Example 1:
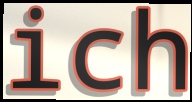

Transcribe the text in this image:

ich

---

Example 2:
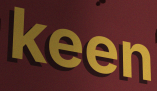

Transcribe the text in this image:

keen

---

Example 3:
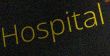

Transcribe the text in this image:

Hospital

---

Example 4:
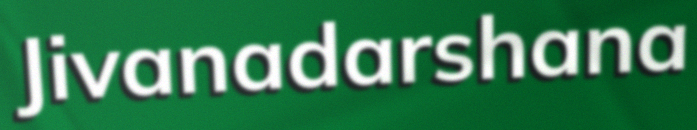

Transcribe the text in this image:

Jivanadarshana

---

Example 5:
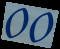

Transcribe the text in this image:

oo